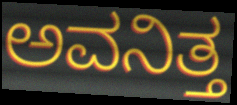
ಅವನಿತ್ತ